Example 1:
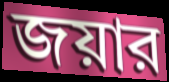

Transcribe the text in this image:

জয়ার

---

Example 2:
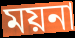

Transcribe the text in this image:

ময়না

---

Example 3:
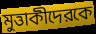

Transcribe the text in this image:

মুত্তাকীদেরকে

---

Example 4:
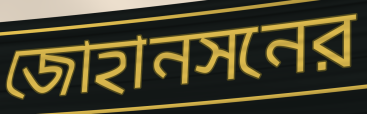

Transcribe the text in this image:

জোহানসনের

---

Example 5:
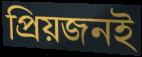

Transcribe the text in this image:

প্রিয়জনই